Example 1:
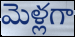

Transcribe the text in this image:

మెళ్లగా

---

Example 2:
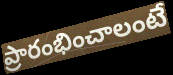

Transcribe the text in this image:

ప్రారంభించాలంటే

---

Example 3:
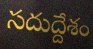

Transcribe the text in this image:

సదుద్దేశం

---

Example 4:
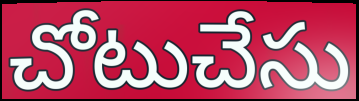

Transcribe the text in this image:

చోటుచేసు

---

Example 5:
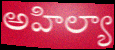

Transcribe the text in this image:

అహిల్యా